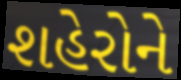
શહેરોને